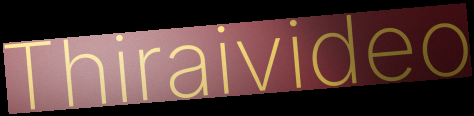
Thiraivideo